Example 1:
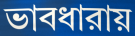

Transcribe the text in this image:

ভাবধারায়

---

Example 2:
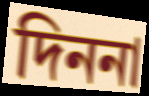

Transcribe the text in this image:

দিননা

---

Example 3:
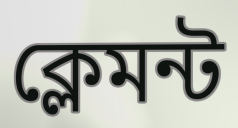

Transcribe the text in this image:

ক্লেমন্ট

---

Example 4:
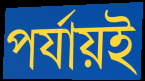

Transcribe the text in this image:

পর্যায়ই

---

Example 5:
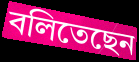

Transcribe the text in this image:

বলিতেছেন